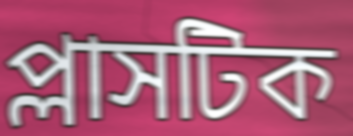
প্লাসটিক